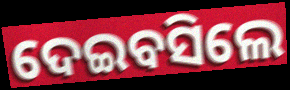
ଦେଇବସିଲେ